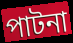
পাটনা